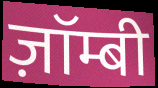
ज़ॉम्बी